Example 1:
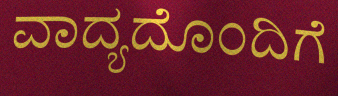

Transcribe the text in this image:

ವಾದ್ಯದೊಂದಿಗೆ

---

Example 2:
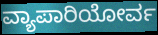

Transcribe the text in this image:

ವ್ಯಾಪಾರಿಯೋರ್ವ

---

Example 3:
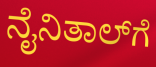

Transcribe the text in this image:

ನೈನಿತಾಲ್‌ಗೆ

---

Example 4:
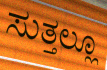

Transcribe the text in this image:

ಸುತ್ತಲ್ಲೂ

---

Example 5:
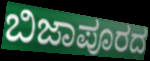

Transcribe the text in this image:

ಬಿಜಾಪೂರದ